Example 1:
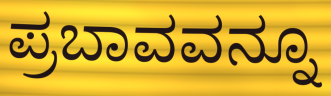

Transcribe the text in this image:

ಪ್ರಬಾವವನ್ನೂ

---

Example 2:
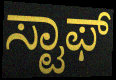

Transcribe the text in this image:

ಸ್ಟಾಫ್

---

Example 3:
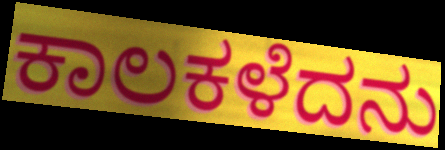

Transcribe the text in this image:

ಕಾಲಕಳೆದನು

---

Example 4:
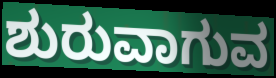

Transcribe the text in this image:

ಶುರುವಾಗುವ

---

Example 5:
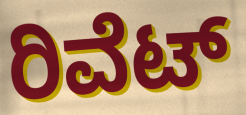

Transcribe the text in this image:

ರಿವೆಟ್